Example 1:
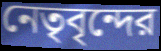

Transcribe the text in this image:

নেতৃবৃন্দের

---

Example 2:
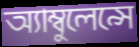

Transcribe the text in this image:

অ্যাম্বুলেন্সে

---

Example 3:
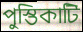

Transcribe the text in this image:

পুস্তিকাটি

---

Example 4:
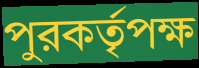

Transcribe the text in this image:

পুরকর্তৃপক্ষ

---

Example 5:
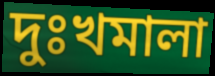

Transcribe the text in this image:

দুঃখমালা